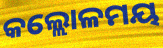
କଲ୍ଲୋଳମୟ